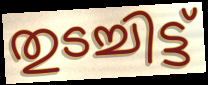
തുടച്ചിട്ട്